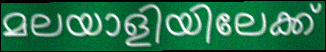
മലയാളിയിലേക്ക്